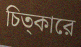
চিত্কারে